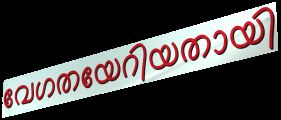
വേഗതയേറിയതായി